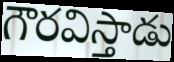
గౌరవిస్తాడు